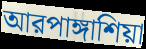
আরপাঙ্গাশিয়া